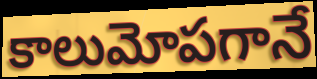
కాలుమోపగానే